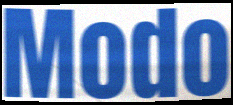
Modo